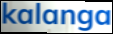
kalanga